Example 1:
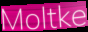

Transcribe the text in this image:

Moltke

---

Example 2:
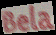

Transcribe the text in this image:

Bela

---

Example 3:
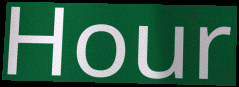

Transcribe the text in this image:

Hour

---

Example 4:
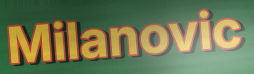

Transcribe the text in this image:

Milanovic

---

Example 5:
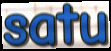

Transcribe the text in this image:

satu